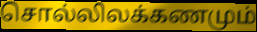
சொல்லிலக்கணமும்